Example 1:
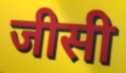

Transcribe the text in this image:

जीसी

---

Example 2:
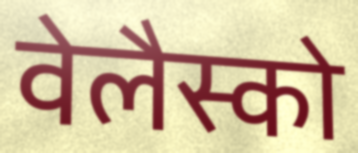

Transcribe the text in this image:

वेलैस्को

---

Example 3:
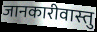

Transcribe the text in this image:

जानकारीवास्तु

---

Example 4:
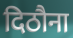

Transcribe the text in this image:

दिठौना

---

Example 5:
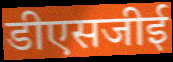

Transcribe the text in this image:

डीएसजीई